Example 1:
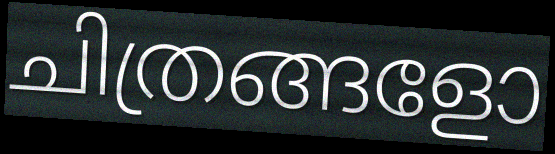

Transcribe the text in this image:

ചിത്രങ്ങളോ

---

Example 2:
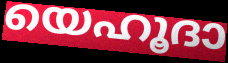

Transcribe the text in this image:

യെഹൂദാ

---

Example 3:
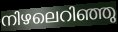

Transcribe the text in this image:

നിഴലെറിഞ്ഞു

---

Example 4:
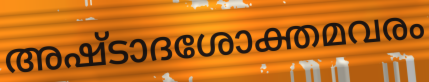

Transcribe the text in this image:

അഷ്ടാദശോക്തമവരം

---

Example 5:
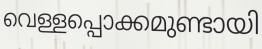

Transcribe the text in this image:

വെള്ളപ്പൊക്കമുണ്ടായി